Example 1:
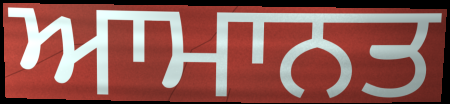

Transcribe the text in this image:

ਆਮਾਨਤ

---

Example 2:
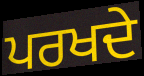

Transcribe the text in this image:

ਪਰਖਦੇ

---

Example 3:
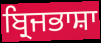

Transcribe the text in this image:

ਬ੍ਰਿਜਭਾਸ਼ਾ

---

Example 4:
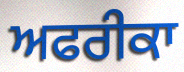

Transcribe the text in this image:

ਅਫਰੀਕਾ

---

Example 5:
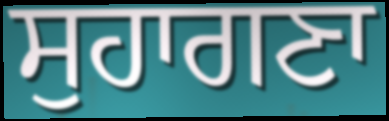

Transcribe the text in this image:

ਸੁਹਾਗਣਾ